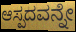
ಆಸ್ಪದವನ್ನೇ